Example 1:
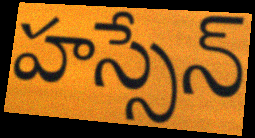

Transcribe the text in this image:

హస్సేన్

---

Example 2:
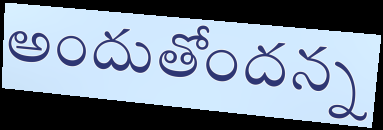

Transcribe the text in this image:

అందుతోందన్న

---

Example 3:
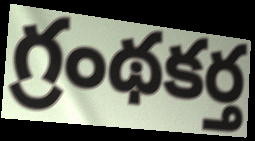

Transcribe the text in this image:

గ్రంథకర్త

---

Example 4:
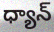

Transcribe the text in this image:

ధ్యాన్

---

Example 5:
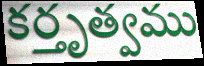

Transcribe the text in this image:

కర్తృత్వము